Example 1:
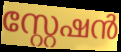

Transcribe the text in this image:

സ്റ്റേഷൻ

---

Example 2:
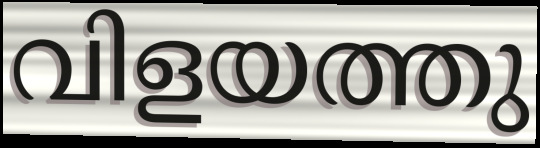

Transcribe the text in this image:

വിളയത്തു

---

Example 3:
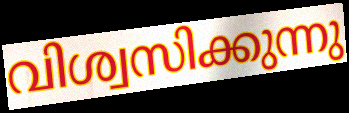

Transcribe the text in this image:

വിശ്വസിക്കുന്നു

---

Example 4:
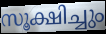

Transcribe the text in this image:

സൂക്ഷിച്ചും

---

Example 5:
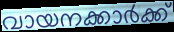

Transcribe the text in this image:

വായനക്കാർക്ക്